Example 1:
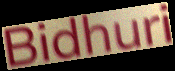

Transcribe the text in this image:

Bidhuri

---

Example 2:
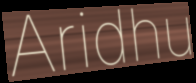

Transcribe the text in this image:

Aridhu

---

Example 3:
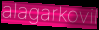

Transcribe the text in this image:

alagarkovil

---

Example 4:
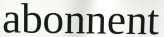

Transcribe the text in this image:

abonnent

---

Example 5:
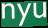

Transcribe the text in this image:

nyu